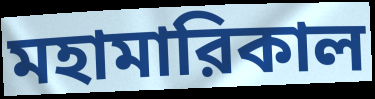
মহামারিকাল